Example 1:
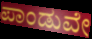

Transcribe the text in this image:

ಪಾಂಡುವೇ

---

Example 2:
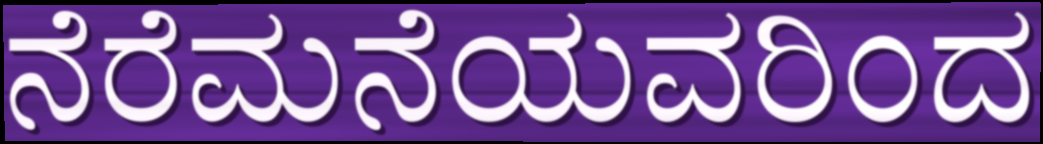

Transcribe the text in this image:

ನೆರೆಮನೆಯವರಿಂದ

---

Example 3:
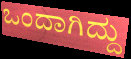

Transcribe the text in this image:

ಒಂದಾಗಿದ್ದು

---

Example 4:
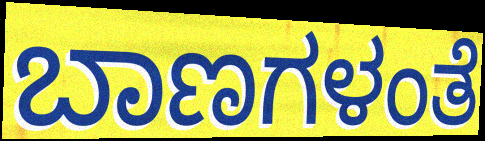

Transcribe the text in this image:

ಬಾಣಗಳಂತೆ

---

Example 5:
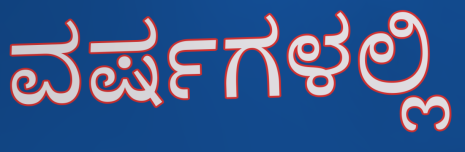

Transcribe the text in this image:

ವರ್ಷಗಳಲ್ಲಿ